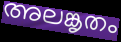
അലങ്കൃതം